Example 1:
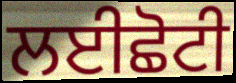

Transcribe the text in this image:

ਲਈਛੋਟੀ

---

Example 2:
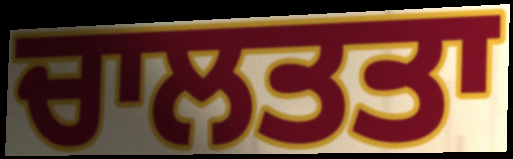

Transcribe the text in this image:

ਚਾਲਤਤਾ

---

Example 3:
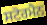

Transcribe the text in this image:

ਸਟੋਰਮੈਨ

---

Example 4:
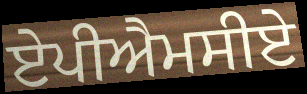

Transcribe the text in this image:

ਏਪੀਐਮਸੀਏ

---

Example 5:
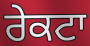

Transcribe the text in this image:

ਰੇਕਟਾ